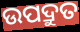
ଉପଦ୍ରୁତ